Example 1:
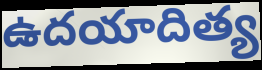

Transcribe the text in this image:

ఉదయాదిత్య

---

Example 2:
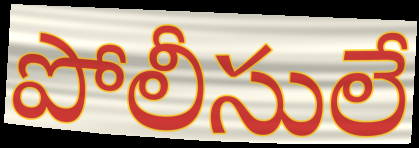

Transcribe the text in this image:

పోలీసులే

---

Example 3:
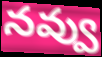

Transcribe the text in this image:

నవ్వు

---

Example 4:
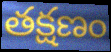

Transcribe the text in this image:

తక్షణం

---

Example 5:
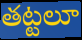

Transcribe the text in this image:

తట్టలూ